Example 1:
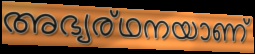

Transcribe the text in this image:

അഭ്യര്ഥനയാണ്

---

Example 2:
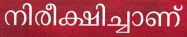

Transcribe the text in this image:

നിരീക്ഷിച്ചാണ്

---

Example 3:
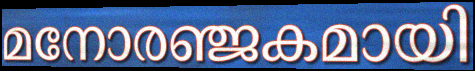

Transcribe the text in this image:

മനോരഞ്ജകമായി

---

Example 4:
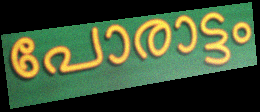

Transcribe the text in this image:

പോരാട്ടം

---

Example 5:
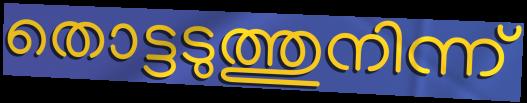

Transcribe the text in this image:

തൊട്ടടുത്തുനിന്ന്